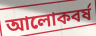
আলোকবৰ্ষ